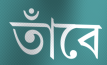
তাঁবে